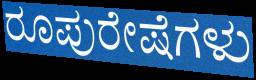
ರೂಪುರೇಷೆಗಳು